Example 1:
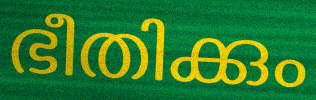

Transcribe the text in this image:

ഭീതിക്കും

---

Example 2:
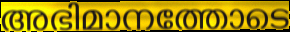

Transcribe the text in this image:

അഭിമാനത്തോടെ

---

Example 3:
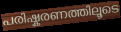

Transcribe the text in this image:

പരിഷ്കരണത്തിലൂടെ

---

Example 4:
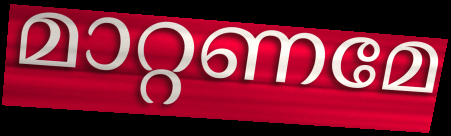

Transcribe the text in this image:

മാറ്റണമേ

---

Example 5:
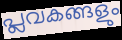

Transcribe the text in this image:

പ്ലവകങ്ങളും